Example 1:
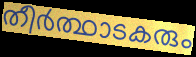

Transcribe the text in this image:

തീർത്ഥാടകരും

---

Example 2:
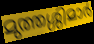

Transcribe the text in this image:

മുത്തശ്ശിമാർ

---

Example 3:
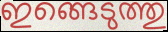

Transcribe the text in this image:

ഇങ്ങെടുത്തു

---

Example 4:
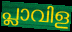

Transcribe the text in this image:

പ്ലാവിള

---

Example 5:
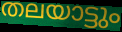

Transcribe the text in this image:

തലയാട്ടും